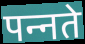
पन्नते